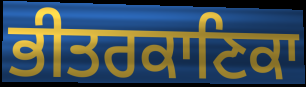
ਭੀਤਰਕਾਣਿਕਾ